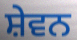
ਸ਼ੇਵਨ